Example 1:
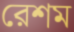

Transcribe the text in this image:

রেশম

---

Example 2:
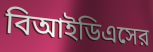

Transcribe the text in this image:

বিআইডিএসের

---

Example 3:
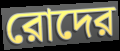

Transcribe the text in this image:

রোদের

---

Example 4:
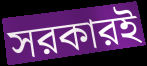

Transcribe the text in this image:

সরকারই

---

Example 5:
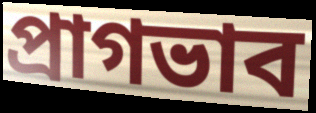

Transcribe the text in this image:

প্রাগভাব